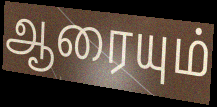
ஆரையும்